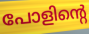
പോളിന്റെ